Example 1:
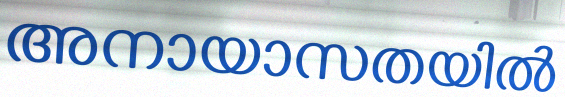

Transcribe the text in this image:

അനായാസതയിൽ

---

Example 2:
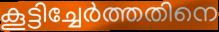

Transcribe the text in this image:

കൂട്ടിച്ചേർത്തതിനെ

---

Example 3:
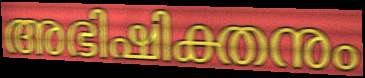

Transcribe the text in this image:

അഭിഷിക്തനും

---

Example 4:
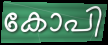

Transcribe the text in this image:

കോപി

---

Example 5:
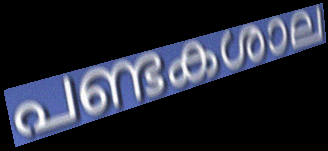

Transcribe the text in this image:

പണ്ടകശാല